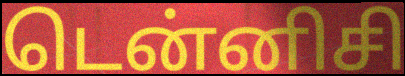
டென்னிசி